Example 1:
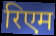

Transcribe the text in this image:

रिएम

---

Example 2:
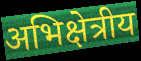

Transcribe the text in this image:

अभिक्षेत्रीय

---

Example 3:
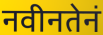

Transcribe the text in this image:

नवीनतेनं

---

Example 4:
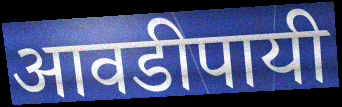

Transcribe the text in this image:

आवडीपायी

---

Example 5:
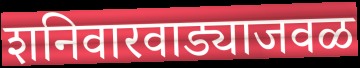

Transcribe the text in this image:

शनिवारवाड्याजवळ